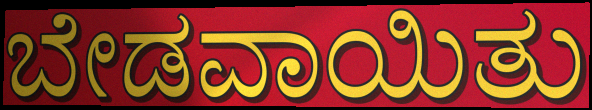
ಬೇಡವಾಯಿತು